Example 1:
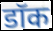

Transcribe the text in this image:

डॉक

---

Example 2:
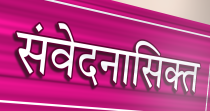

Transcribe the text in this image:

संवेदनासिक्त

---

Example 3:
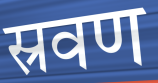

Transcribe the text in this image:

स्रवण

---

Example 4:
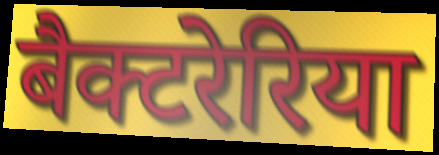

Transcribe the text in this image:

बैक्टरेरिया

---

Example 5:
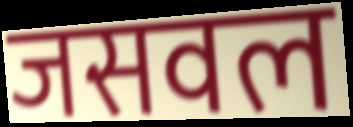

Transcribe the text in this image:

जसवल